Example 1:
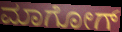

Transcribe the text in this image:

ಮಾಗೋಗ್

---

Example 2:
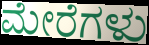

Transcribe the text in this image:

ಮೇರೆಗಳು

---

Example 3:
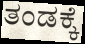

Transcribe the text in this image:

ತಂಡಕ್ಕೆ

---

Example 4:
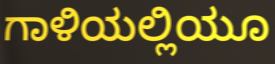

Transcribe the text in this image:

ಗಾಳಿಯಲ್ಲಿಯೂ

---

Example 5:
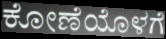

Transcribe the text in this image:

ಕೋಣೆಯೊಳಗೆ